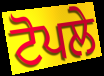
ਟੋਪਲੇ